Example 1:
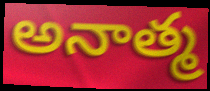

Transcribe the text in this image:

అనాత్మ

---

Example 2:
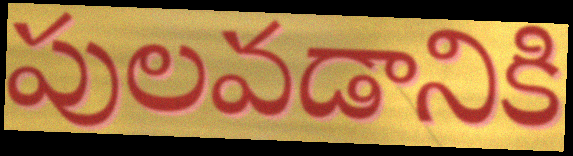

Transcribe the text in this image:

పులవడానికి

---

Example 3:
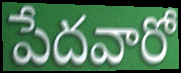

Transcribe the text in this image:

పేదవారో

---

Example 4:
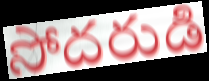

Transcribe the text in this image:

సోదరుడి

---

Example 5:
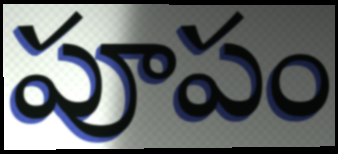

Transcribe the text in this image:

పూపం